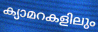
ക്യാമറകളിലും